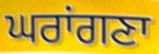
ਘਰਾਂਗਣਾ